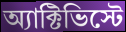
অ্যাক্টিভিস্টে